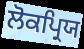
ਲੋਕਪ੍ਰਿਯ